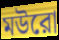
মউরো